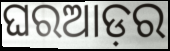
ଘରଆଡ଼ର